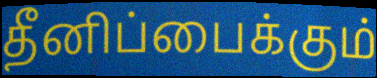
தீனிப்பைக்கும்